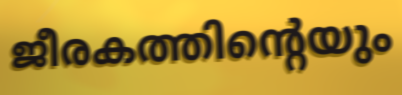
ജീരകത്തിന്റെയും